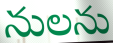
నులను